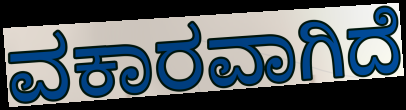
ವಕಾರವಾಗಿದೆ